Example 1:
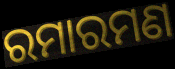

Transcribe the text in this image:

ରମାରମଣ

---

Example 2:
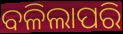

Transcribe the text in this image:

ବଳିଲାପରି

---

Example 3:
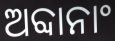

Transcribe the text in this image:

ଅବ୍ଦାନାଂ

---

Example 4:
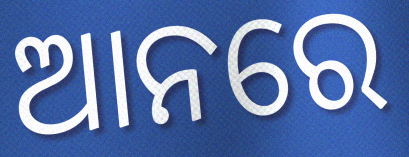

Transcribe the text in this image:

ଆନରେ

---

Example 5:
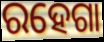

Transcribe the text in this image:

ରହେଗା